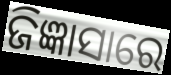
ଜିଜ୍ଞାସାରେ